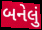
બનેલું